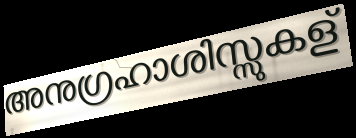
അനുഗ്രഹാശിസ്സുകള്